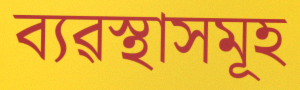
ব্যৱস্থাসমূহ